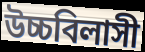
উচ্চবিলাসী